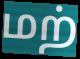
மற்